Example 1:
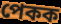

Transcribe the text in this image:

পেকক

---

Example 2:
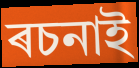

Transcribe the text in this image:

ৰচনাই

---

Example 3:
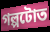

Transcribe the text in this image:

গল্পটোত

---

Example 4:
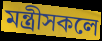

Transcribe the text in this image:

মন্ত্ৰীসকলে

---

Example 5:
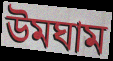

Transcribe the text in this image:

উমঘাম